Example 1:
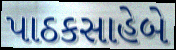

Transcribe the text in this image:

પાઠકસાહેબે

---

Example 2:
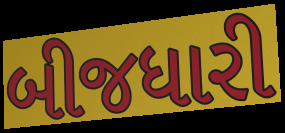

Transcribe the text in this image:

બીજધારી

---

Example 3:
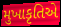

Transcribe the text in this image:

મુખાકૃતિએ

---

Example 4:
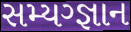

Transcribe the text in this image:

સમ્યગ્જ્ઞાન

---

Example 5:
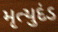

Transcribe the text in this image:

મૃત્યુદંડ